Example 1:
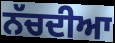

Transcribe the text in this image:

ਨੱਚਦੀਆ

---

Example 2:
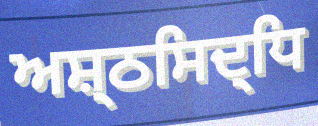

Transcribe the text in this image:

ਅਸ਼੍ਠਸਿਦ੍ਧਿ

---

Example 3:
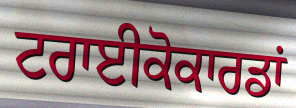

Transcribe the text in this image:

ਟਰਾਈਕੋਕਾਰਡਾਂ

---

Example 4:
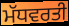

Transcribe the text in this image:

ਮੱਧਵਰਤੀ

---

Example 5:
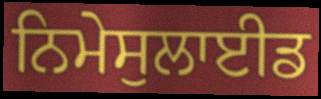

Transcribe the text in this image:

ਨਿਮੇਸੁਲਾਈਡ